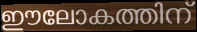
ഈലോകത്തിന്